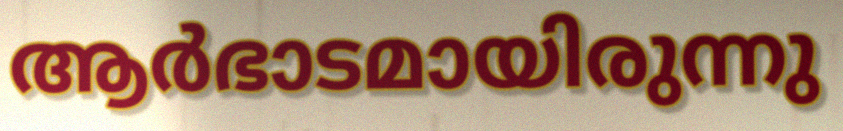
ആർഭാടമായിരുന്നു